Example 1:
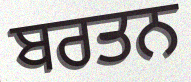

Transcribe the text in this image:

ਬਰਤਨ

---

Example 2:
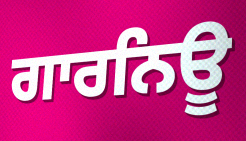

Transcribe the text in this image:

ਗਾਰਨਿਊ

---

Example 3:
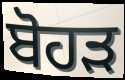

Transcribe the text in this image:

ਬੋਹੜ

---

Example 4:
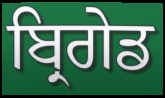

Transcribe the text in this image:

ਬ੍ਰਿਗੇਡ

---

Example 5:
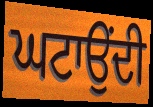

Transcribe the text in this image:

ਘਟਾਉਂਦੀ